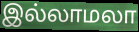
இல்லாமலா